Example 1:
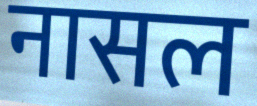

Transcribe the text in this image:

नासल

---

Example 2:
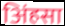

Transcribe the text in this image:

अिंहसा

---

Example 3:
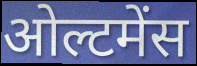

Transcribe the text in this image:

ओल्टमेंस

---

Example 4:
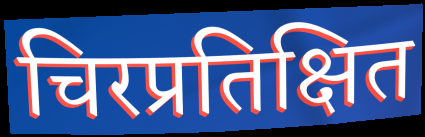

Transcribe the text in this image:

चिरप्रतिक्षित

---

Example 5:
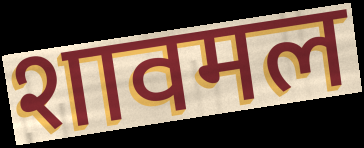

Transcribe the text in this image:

शावमल